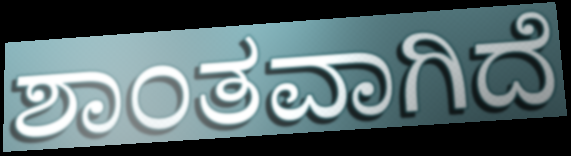
ಶಾಂತವಾಗಿದೆ